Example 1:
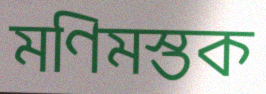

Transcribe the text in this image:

মণিমস্তক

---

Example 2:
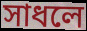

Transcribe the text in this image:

সাধলে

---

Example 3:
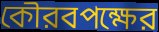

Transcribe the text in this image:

কৌরবপক্ষের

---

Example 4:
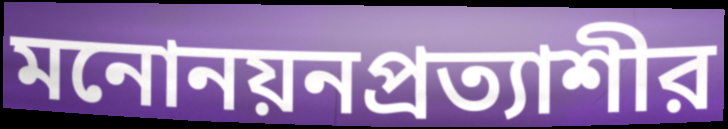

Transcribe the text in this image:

মনোনয়নপ্রত্যাশীর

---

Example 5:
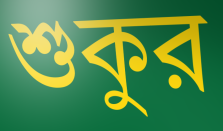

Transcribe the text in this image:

শুকুর